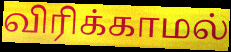
விரிக்காமல்